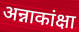
अन्नाकांक्षा